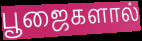
பூஜைகளால்